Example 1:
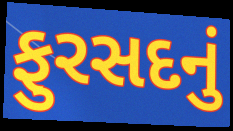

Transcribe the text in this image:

ફુરસદનું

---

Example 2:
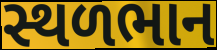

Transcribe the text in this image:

સ્થળભાન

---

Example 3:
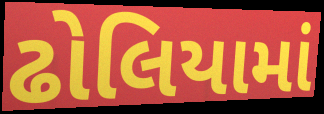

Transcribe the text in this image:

ઢોલિયામાં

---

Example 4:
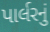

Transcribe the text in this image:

પાર્લરનું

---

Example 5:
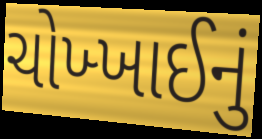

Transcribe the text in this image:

ચોખ્ખાઈનું